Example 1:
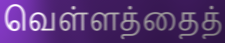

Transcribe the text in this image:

வெள்ளத்தைத்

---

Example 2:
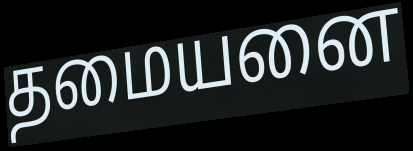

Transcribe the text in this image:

தமையனை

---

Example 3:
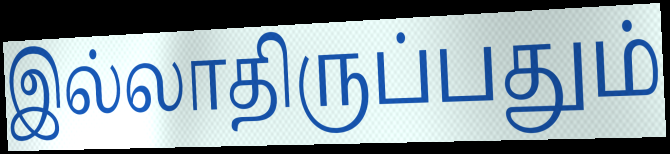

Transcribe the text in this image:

இல்லாதிருப்பதும்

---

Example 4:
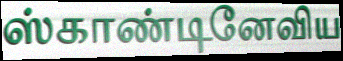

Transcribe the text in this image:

ஸ்காண்டினேவிய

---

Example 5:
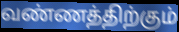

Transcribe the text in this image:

வண்ணத்திற்கும்